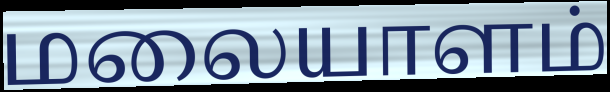
மலையாளம்